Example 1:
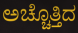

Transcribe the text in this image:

ಅಚ್ಚೊತ್ತಿದ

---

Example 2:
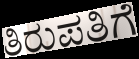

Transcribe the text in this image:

ತಿರುಪತಿಗೆ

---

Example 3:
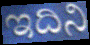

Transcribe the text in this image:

ಇದಿನಿ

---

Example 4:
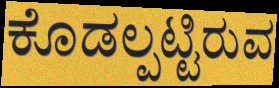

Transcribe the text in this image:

ಕೊಡಲ್ಪಟ್ಟಿರುವ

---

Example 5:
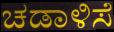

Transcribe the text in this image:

ಚಡಾಳಿಸೆ